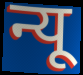
न्यू